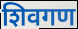
शिवगण